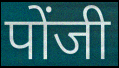
पोंजी